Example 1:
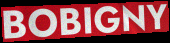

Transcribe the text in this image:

BOBIGNY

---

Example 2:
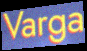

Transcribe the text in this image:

Varga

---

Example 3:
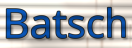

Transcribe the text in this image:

Batsch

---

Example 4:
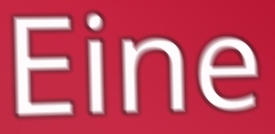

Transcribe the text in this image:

Eine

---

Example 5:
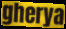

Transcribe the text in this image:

gherya